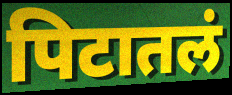
पिटातलं